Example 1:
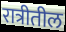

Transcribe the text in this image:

रात्रीतील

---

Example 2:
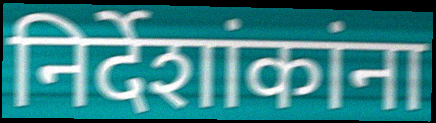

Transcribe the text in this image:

निर्देशांकांना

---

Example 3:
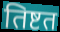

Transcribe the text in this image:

तिष्टत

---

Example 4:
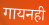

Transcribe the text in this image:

गायनही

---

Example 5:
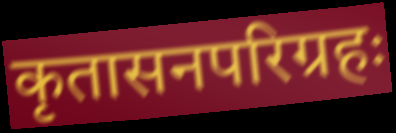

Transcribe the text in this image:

कृतासनपरिग्रहः